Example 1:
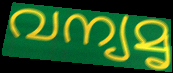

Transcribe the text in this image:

വന്യമൃ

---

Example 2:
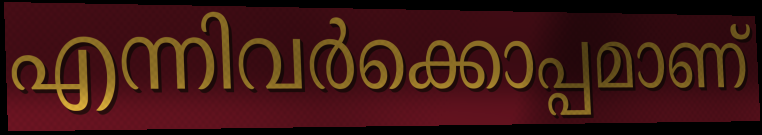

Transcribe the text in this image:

എന്നിവർക്കൊപ്പമാണ്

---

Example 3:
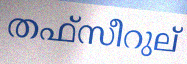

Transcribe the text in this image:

തഫ്സീറുല്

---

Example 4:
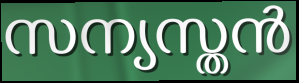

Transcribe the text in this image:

സന്യസ്തൻ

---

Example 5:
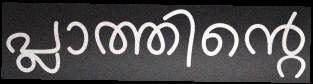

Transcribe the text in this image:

പ്ലാത്തിന്റെ